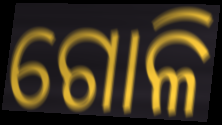
ଗୋଳି